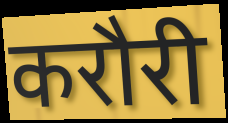
करौरी